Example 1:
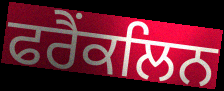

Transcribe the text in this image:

ਫਰੈਂਕਲਿਨ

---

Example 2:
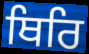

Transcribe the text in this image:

ਥਿਰਿ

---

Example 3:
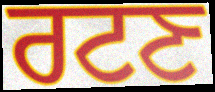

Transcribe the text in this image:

ਰਟਣ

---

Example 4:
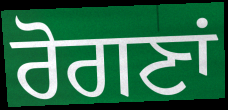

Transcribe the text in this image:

ਰੋਗਣਾਂ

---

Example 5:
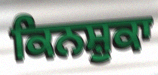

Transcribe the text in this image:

ਕਿਨਸ਼ੁਕਾ